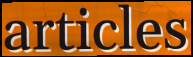
articles